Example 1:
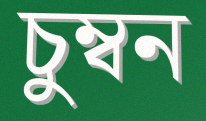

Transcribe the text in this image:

চুম্বন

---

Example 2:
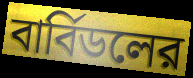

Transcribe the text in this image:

বার্বিডলের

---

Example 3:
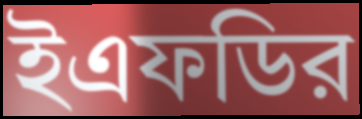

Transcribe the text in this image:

ইএফডির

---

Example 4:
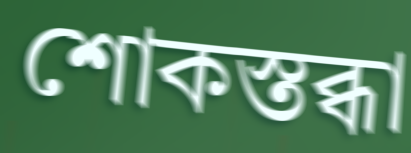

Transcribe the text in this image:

শোকস্তব্ধা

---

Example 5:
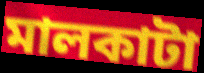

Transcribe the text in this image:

মালকাটা